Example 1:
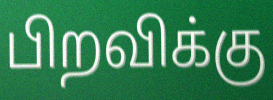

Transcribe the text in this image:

பிறவிக்கு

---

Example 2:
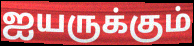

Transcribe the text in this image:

ஐயருக்கும்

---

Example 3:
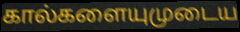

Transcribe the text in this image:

கால்களையுமுடைய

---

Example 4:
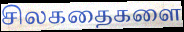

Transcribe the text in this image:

சிலகதைகளை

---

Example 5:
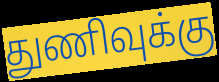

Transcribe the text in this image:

துணிவுக்கு